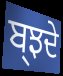
ਬ੍ਝਦੇ